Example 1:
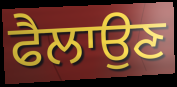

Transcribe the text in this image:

ਫੈਲਾਉਣ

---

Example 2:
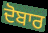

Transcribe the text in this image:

ਦੋਬਾਰ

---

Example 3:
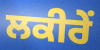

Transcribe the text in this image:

ਲਕੀਰੇਂ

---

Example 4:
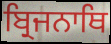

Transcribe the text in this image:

ਬ੍ਰਿਜਨਾਥਿ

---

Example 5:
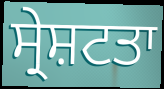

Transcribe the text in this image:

ਸ੍ਰੇਸ਼ਟਤਾ